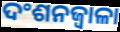
ଦଂଶନଜ୍ୱାଳା